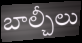
బాల్చీలు